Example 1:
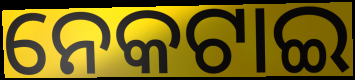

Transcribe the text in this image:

ନେକଟାଇ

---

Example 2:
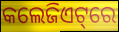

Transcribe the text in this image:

କଲେଜିଏଟ୍‌ରେ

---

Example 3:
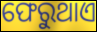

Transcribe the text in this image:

ଫେରୁଥାଏ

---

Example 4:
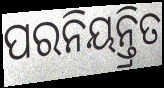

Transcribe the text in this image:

ପରନିୟନ୍ତ୍ରିତ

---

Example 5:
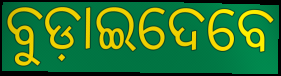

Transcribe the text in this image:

ବୁଡ଼ାଇଦେବେ